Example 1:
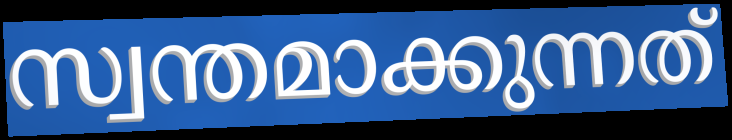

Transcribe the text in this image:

സ്വന്തമാക്കുന്നത്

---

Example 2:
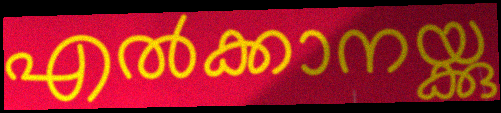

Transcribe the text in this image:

എൽക്കാനയ്ക്കു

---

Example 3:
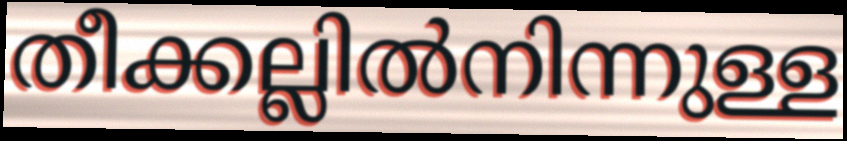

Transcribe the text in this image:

തീക്കല്ലിൽനിന്നുള്ള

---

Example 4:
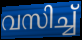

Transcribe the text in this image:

വസിച്ച്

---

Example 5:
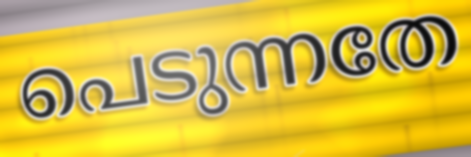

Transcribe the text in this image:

പെടുന്നതേ